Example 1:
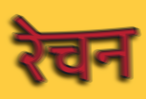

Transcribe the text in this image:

रेचन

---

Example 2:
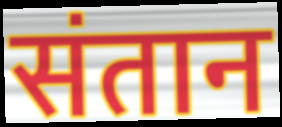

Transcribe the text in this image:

संतान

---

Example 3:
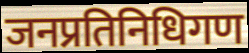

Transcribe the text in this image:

जनप्रतिनिधिगण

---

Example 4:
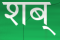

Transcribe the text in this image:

शब्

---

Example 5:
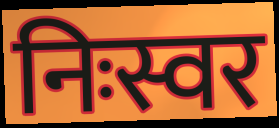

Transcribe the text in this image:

निःस्वर